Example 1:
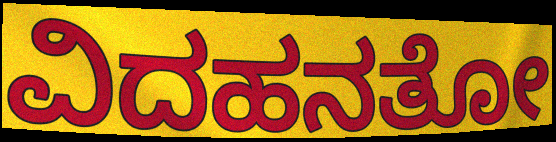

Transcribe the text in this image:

ವಿದಹನತೋ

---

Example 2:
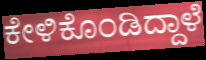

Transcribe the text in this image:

ಕೇಳಿಕೊಂಡಿದ್ದಾಳೆ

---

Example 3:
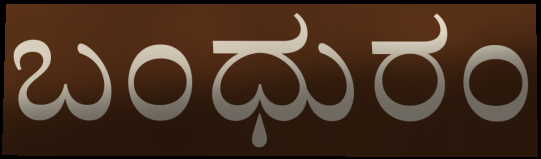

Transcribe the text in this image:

ಬಂಧುರಂ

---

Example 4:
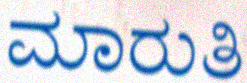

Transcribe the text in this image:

ಮಾರುತಿ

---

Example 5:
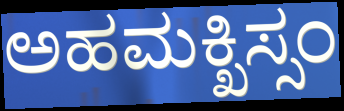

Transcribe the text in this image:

ಅಹಮಕ್ಖಿಸ್ಸಂ